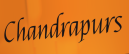
Chandrapurs